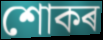
শোকৰ